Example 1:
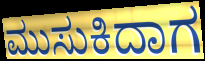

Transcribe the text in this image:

ಮುಸುಕಿದಾಗ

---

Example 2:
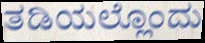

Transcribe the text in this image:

ತಡಿಯಲ್ಲೊಂದು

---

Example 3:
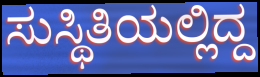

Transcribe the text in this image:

ಸುಸ್ಥಿತಿಯಲ್ಲಿದ್ದ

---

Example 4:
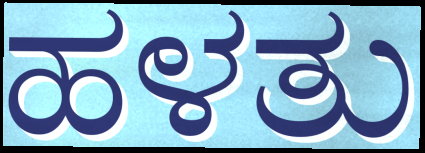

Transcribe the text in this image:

ಹಳತು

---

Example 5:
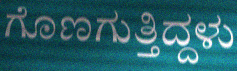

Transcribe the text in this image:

ಗೊಣಗುತ್ತಿದ್ದಳು